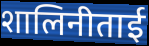
शालिनीताई